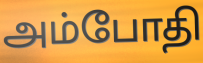
அம்போதி